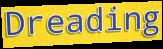
Dreading